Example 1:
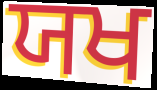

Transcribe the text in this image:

ਯਖ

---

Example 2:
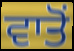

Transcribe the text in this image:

ਵਾਤੋਂ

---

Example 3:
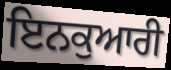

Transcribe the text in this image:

ਇਨਕੁਆਰੀ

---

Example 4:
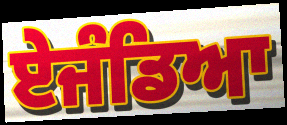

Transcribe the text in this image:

ਏਜੰਡਿਆ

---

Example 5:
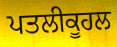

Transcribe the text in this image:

ਪਤਲੀਕੂਹਲ